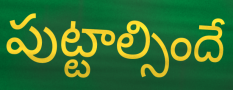
పుట్టాల్సిందే